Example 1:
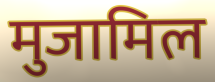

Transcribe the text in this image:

मुजामिल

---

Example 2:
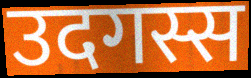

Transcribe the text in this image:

उदगस्स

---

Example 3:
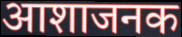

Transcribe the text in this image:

आशाजनक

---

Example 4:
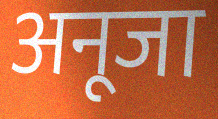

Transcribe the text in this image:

अनूजा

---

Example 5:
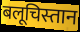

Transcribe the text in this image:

बलूचिस्‍तान